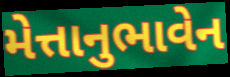
મેત્તાનુભાવેન